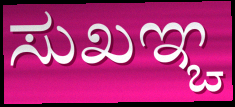
ಸುಖಞ್ಚ